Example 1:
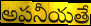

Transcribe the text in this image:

అపనీయతే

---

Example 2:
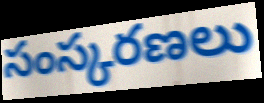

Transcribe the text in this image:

సంస్కరణలు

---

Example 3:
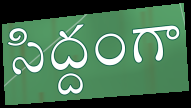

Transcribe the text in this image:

సిద్దంగా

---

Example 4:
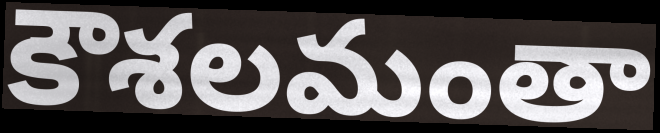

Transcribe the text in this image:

కౌశలమంతా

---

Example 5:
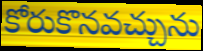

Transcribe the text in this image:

కోరుకొనవచ్చును